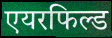
एयरफिल्ड